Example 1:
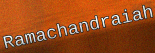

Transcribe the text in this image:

Ramachandraiah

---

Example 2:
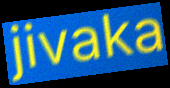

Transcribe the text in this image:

jivaka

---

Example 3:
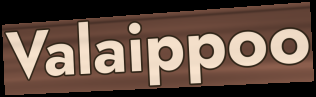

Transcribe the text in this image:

Valaippoo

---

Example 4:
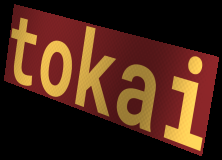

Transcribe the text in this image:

tokai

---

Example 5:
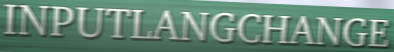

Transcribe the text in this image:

INPUTLANGCHANGE